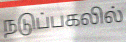
நடுப்பகலில்